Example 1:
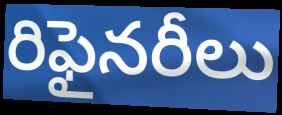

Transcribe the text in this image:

రిఫైనరీలు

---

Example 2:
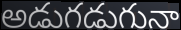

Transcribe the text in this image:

అడుగడుగునా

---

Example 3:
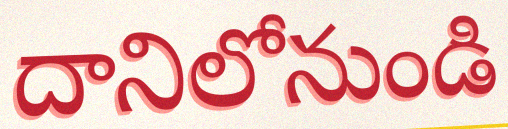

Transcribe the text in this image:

దానిలోనుండి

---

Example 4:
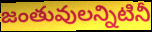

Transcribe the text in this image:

జంతువులన్నిటినీ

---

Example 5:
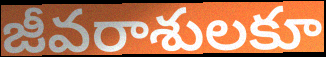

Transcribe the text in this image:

జీవరాశులకూ